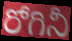
రోగినీ